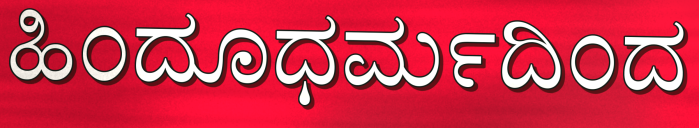
ಹಿಂದೂಧರ್ಮದಿಂದ